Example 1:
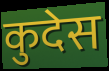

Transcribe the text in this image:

कुदेस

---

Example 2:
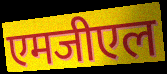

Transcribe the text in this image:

एमजीएल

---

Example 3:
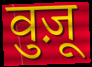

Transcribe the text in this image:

वुज़ू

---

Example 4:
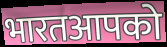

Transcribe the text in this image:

भारतआपको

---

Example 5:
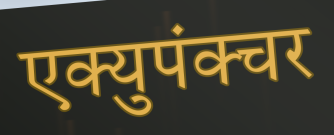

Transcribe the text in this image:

एक्युपंक्चर